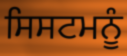
ਸਿਸਟਮਨੂੰ